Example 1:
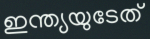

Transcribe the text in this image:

ഇന്ത്യയുടേത്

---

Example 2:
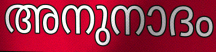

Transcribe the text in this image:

അനുനാദം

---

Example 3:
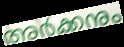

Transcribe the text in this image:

അർക്കനും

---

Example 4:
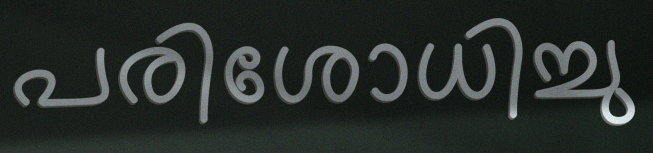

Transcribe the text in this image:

പരിശോധിച്ചു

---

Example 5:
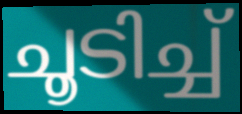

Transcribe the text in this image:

ചൂടിച്ച്